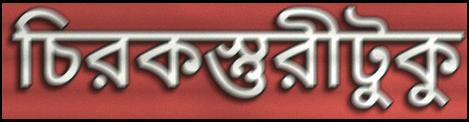
চিরকস্তুরীটুকু